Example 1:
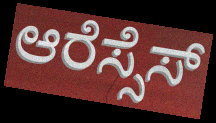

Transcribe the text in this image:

ಆರೆಸ್ಸೆಸ್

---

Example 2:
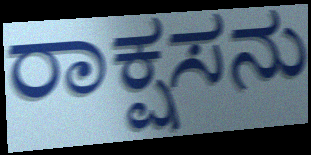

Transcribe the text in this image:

ರಾಕ್ಷಸನು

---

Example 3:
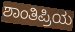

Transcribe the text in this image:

ಶಾಂತಿಪ್ರಿಯ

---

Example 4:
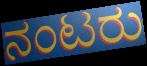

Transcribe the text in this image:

ನಂಟರು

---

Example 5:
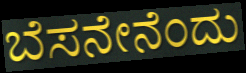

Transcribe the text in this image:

ಬೆಸನೇನೆಂದು